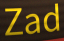
Zad